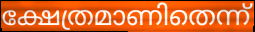
ക്ഷേത്രമാണിതെന്ന്